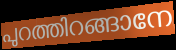
പുറത്തിറങ്ങാനേ